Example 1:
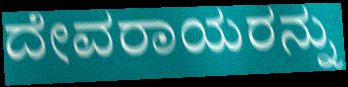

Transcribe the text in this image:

ದೇವರಾಯರನ್ನು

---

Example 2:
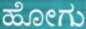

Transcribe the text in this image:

ಹೋಗು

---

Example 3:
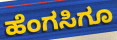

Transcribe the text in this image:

ಹೆಂಗಸಿಗೂ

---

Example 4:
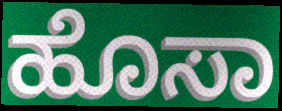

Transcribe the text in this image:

ಹೊಸಾ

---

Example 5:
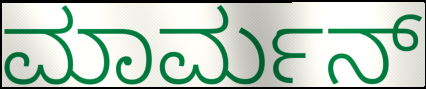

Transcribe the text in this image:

ಮಾರ್ಮನ್